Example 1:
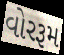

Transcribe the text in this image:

વોરરૂમ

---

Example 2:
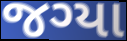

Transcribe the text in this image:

જગ્યા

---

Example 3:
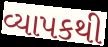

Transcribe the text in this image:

વ્યાપકથી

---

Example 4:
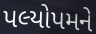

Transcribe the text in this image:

પલ્યોપમને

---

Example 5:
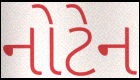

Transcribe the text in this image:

નોટેન